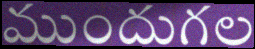
ముందుగల